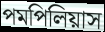
পমপিলিয়াস